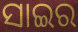
ସାଇର